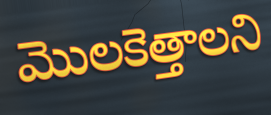
మొలకెత్తాలని